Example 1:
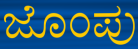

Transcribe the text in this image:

ಜೊಂಪು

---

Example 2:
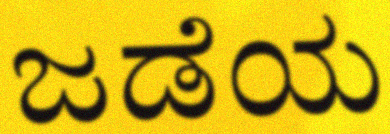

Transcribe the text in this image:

ಜಡೆಯ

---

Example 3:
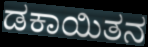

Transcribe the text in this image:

ಡಕಾಯಿತನ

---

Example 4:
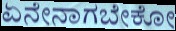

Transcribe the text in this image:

ಏನೇನಾಗಬೇಕೋ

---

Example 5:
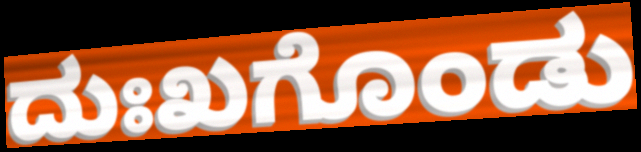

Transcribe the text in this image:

ದುಃಖಗೊಂಡು